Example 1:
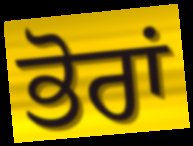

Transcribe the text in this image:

ਭੋਰਾਂ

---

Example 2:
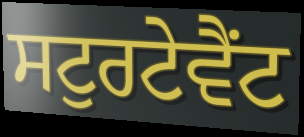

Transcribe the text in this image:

ਸਟੁਰਟੇਵੈਂਟ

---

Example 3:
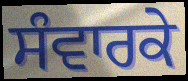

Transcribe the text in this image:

ਸੰਵਾਰਕੇ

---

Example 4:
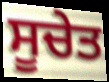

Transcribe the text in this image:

ਸੂਚੇਤ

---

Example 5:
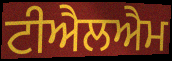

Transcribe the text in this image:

ਟੀਐਲਐਮ